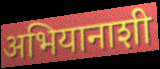
अभियानाशी